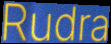
Rudra